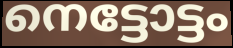
നെട്ടോട്ടം